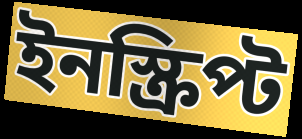
ইনস্ক্রিপ্ট